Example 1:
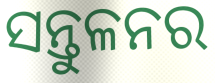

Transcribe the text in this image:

ସନ୍ତୁଳନର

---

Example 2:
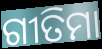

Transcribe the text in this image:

ଗୀତିମା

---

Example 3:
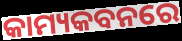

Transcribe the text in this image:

କାମ୍ୟକବନରେ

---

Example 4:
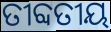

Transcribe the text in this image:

ତୀବ୍ଦତୀୟ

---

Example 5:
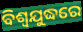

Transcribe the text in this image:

ବିଶ୍ଵଯୁଦ୍ଧରେ